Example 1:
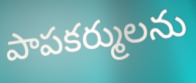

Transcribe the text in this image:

పాపకర్ములను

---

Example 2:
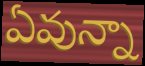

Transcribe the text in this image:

ఏవున్నా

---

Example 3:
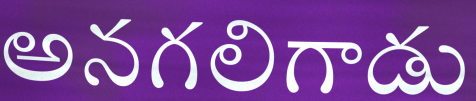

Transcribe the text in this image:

అనగలిగాడు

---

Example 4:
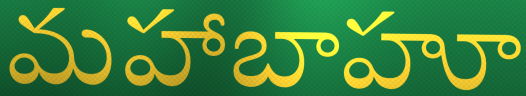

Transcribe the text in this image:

మహాబాహూ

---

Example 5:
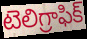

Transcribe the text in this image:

టెలిగ్రాఫిక్